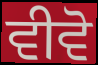
ਵੀਵੋ